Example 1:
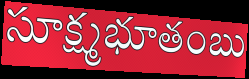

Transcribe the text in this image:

సూక్ష్మభూతంబు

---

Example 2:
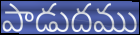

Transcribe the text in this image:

పాడుదము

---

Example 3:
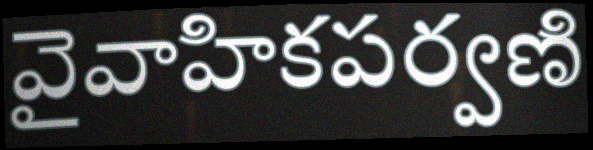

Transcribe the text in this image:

వైవాహికపర్వణి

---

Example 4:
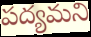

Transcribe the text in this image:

పద్యమని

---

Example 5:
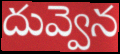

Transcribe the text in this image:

దువ్వెన